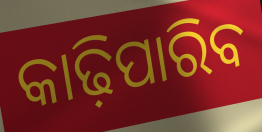
କାଢ଼ିପାରିବ